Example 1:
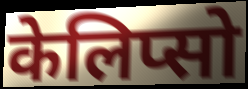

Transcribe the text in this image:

केलिप्सो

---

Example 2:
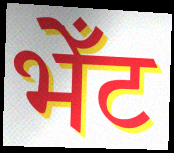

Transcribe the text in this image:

भेँट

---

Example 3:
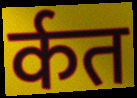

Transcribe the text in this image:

र्कत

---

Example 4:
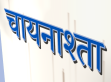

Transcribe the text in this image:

चायनाश्ता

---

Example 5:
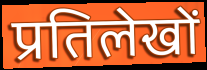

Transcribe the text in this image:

प्रतिलेखों